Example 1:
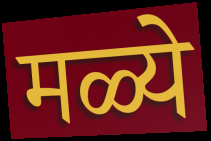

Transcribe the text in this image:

मळ्ये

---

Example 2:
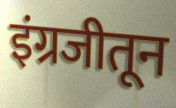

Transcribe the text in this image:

इंग्रजीतून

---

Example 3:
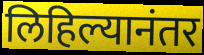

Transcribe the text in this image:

लिहिल्यानंतर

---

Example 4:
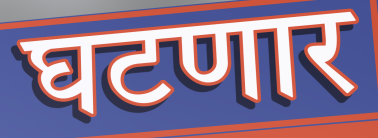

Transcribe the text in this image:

घटणार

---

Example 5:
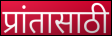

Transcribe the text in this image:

प्रांतासाठी